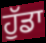
ਹੁੱਡਾ